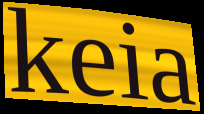
keia